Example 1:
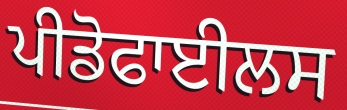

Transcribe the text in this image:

ਪੀਡੋਫਾਈਲਸ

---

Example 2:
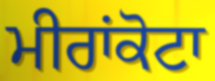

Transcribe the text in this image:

ਮੀਰਾਂਕੋਟਾ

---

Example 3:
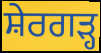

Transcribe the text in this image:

ਸ਼ੇਰਗੜ੍ਹ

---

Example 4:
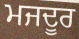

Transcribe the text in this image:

ਮਜਦੂਰ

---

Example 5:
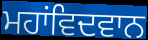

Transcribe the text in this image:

ਮਹਾਂਵਿਦਵਾਨ